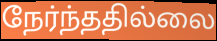
நேர்ந்ததில்லை